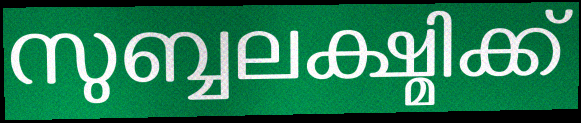
സുബ്ബലക്ഷ്മിക്ക്